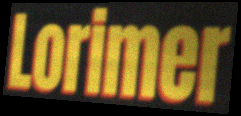
Lorimer